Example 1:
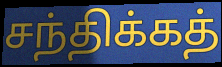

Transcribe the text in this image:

சந்திக்கத்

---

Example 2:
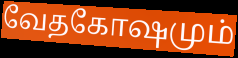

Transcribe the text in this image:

வேதகோஷமும்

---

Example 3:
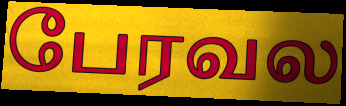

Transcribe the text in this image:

பேரவல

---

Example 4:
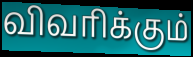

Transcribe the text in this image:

விவரிக்கும்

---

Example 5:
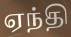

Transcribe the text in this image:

ஏந்தி